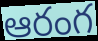
ఆరంగ